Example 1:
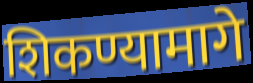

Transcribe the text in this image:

शिकण्यामागे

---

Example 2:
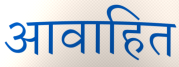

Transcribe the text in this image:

आवाहित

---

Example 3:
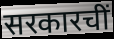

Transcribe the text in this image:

सरकारचीं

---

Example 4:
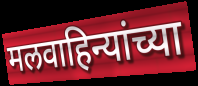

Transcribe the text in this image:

मलवाहिन्यांच्या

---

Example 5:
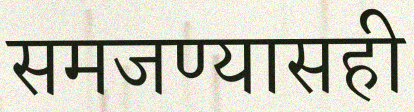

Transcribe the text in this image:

समजण्यासही